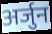
अर्जुन